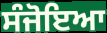
ਸੰਜੋਇਆ